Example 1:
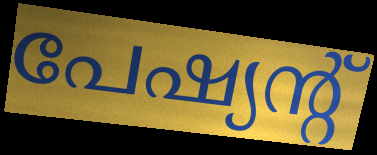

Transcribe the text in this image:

പേഷ്യന്റ്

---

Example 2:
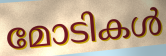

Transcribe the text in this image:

മോടികൾ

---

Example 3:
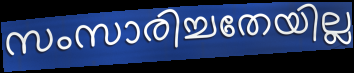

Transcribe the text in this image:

സംസാരിച്ചതേയില്ല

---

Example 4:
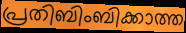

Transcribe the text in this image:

പ്രതിബിംബിക്കാത്ത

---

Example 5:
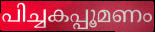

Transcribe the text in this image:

പിച്ചകപ്പൂമണം